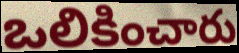
ఒలికించారు